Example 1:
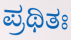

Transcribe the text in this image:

ಪ್ರಥಿತಃ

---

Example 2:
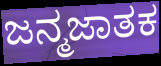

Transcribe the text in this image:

ಜನ್ಮಜಾತಕ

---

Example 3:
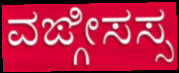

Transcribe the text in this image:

ವಙ್ಗೀಸಸ್ಸ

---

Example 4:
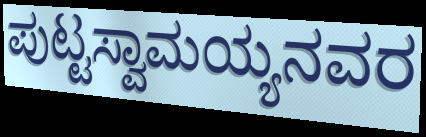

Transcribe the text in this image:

ಪುಟ್ಟಸ್ವಾಮಯ್ಯನವರ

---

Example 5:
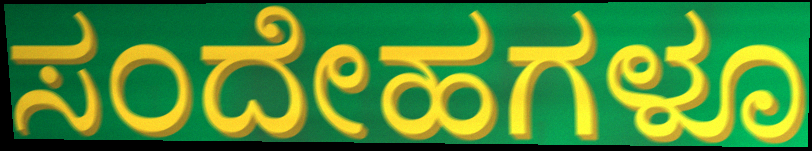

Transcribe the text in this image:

ಸಂದೇಹಗಳೂ